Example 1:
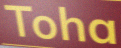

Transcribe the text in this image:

Toha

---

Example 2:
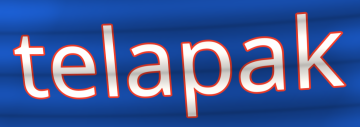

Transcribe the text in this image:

telapak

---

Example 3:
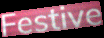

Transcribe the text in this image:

Festive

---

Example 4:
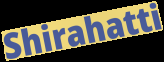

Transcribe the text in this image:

Shirahatti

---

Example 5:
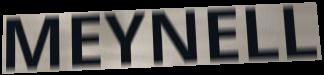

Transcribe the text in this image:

MEYNELL